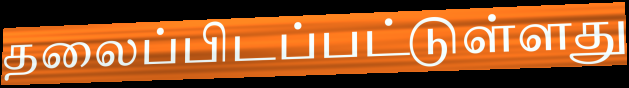
தலைப்பிடப்பட்டுள்ளது